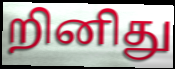
றினிது